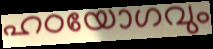
ഹഠയോഗവും